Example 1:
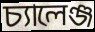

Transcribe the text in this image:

চ্যালেঞ্জ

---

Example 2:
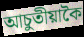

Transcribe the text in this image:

আচুতীয়াকৈ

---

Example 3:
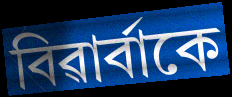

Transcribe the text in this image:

বিৱাৰ্বাকে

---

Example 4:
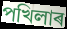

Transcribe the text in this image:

পখিলাৰ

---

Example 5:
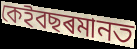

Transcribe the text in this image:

কেইবছৰমানত